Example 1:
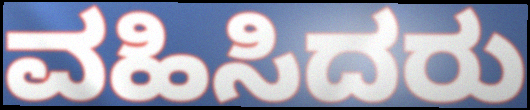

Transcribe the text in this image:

ವಹಿಸಿದರು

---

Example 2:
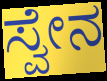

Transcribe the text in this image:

ಸ್ವೇನ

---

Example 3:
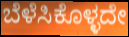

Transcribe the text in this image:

ಬೆಳೆಸಿಕೊಳ್ಳದೇ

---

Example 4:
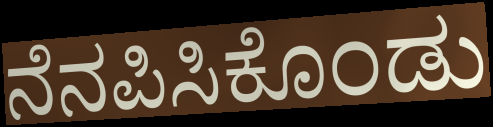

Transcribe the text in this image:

ನೆನಪಿಸಿಕೊಂಡು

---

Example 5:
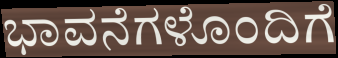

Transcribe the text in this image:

ಭಾವನೆಗಳೊಂದಿಗೆ